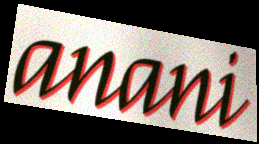
anani